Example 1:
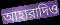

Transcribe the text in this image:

আহারাদিও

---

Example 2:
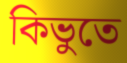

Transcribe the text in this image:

কিভুতে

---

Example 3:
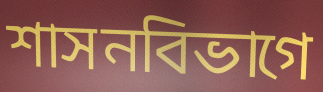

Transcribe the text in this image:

শাসনবিভাগে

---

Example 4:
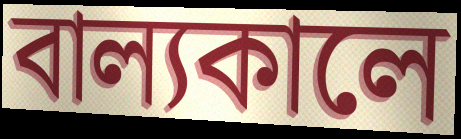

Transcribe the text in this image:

বাল্যকালে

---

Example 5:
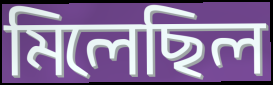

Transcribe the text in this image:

মিলেছিল